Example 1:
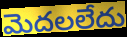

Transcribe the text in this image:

మెదలలేదు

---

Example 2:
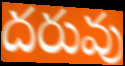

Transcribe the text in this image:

దరువు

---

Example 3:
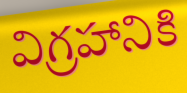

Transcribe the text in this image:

విగ్రహానికి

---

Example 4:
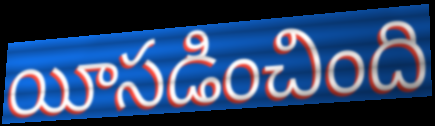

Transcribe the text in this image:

యీసడించింది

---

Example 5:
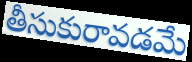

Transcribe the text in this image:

తీసుకురావడమే